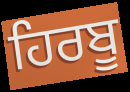
ਹਿਰਬੂ